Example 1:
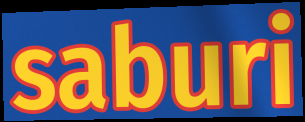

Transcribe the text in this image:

saburi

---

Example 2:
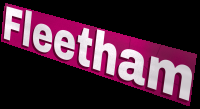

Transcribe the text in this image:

Fleetham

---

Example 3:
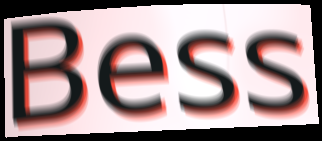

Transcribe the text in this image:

Bess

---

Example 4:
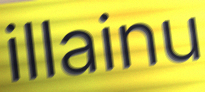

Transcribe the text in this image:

illainu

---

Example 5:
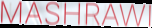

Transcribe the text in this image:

MASHRAWI